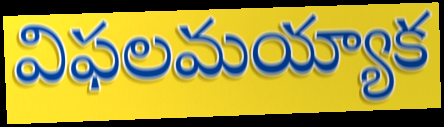
విఫలమయ్యాక